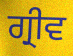
ਗ੍ਰੀਵ